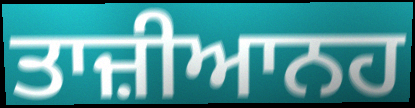
ਤਾਜ਼ੀਆਨਹ